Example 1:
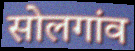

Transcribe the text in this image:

सोलगांव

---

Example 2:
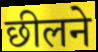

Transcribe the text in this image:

छीलने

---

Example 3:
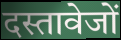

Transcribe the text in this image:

दस्तावेजों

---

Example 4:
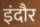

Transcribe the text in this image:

इंदौर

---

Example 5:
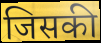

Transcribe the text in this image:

जिसकी